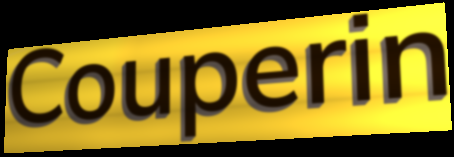
Couperin